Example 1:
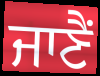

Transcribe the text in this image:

ਜਾਣੈਂ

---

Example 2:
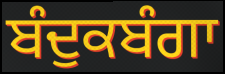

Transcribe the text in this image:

ਬੰਦੁਕਬੰਗਾ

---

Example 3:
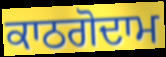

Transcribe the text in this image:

ਕਾਠਗੋਦਾਮ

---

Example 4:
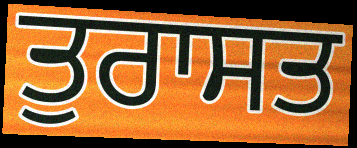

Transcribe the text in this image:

ਤੁਰਾਸਤ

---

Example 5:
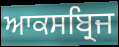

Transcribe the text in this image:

ਆਕਸਬ੍ਰਿਜ